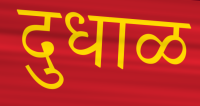
दुधाळ